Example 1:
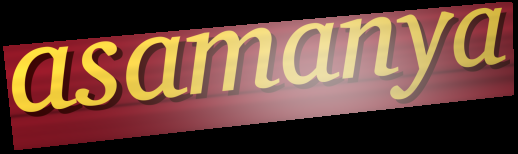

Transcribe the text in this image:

asamanya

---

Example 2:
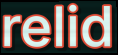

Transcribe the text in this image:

relid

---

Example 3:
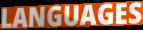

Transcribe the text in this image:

LANGUAGES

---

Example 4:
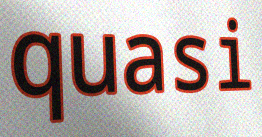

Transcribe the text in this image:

quasi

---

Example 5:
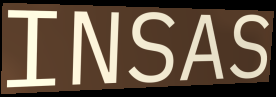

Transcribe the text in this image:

INSAS